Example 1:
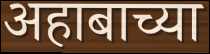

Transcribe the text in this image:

अहाबाच्या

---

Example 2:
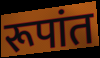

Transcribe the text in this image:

रूपांत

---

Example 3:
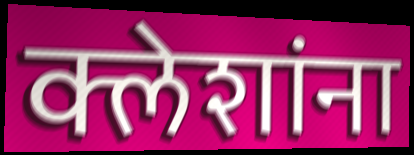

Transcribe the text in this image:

क्लेशांना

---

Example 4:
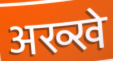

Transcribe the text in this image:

अख्खे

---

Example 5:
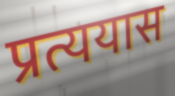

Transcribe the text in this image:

प्रत्ययास